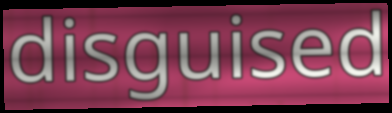
disguised